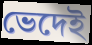
ভেদেই